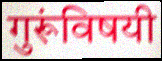
गुरूंविषयी